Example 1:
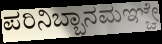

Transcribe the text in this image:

ಪರಿನಿಬ್ಬಾನಮಞ್ಚೇ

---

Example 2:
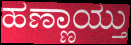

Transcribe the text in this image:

ಹಣ್ಣಾಯ್ತು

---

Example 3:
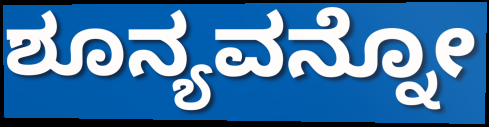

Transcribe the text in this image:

ಶೂನ್ಯವನ್ನೋ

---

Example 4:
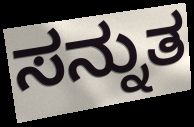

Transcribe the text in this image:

ಸನ್ನುತ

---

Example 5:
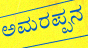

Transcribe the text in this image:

ಅಮರಪ್ಪನ